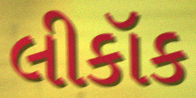
લીકૉક